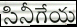
సినీగేయ